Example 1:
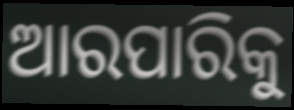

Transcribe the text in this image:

ଆରପାରିକୁ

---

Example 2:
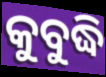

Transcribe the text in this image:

କୁବୁଦ୍ଧି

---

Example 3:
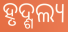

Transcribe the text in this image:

ହୃଦ୍ଶଲ୍ୟ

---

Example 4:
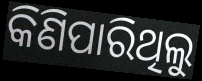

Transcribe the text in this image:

କିଣିପାରିଥିଲୁ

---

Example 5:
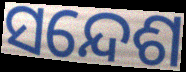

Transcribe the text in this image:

ସନ୍ଦେଶ